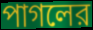
পাগলের